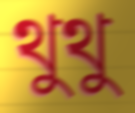
থুথু